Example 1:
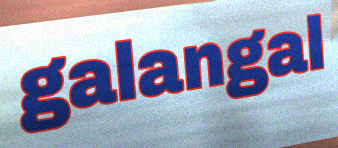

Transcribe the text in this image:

galangal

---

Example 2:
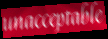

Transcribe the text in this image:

unacceptable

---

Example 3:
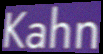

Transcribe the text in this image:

Kahn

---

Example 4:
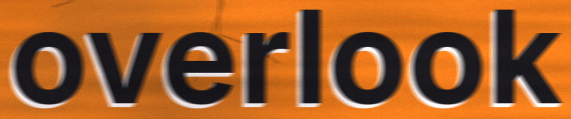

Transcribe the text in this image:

overlook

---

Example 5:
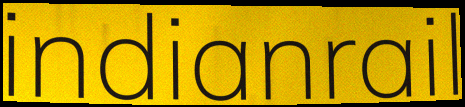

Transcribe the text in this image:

indianrail